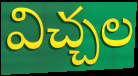
విచ్చల